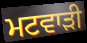
ਮਟਵਾੜੀ